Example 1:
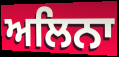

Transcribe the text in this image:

ਅਲਿਨਾ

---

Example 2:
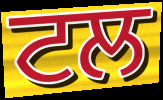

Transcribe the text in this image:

ਟਲ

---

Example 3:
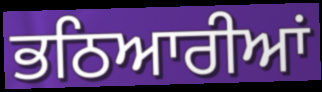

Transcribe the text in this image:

ਭਠਿਆਰੀਆਂ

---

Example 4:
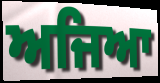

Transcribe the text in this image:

ਅਜਿਆ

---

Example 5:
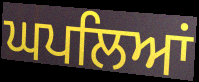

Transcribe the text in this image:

ਘਪਲਿਆਂ